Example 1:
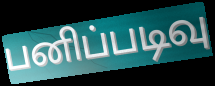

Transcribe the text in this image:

பனிப்படிவு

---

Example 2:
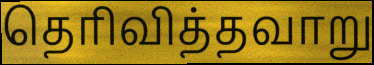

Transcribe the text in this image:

தெரிவித்தவாறு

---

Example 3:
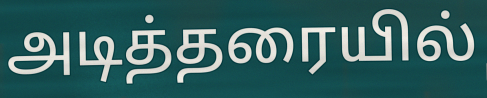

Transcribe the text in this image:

அடித்தரையில்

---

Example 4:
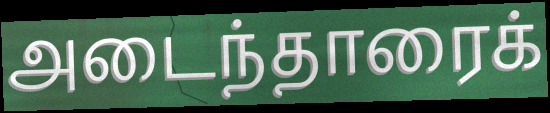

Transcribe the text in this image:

அடைந்தாரைக்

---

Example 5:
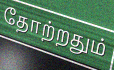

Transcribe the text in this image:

தோற்றதும்